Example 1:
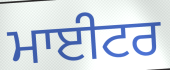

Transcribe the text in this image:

ਮਾਈਟਰ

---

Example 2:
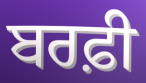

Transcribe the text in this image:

ਬਰਫ਼ੀ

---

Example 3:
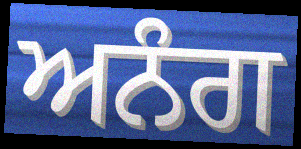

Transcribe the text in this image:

ਅਨੰਗ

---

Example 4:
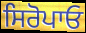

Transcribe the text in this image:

ਸਿਰੋਪਾਓ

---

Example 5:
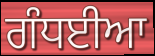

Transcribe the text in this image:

ਗੰਧਈਆ